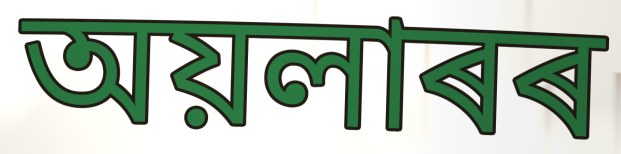
অয়লাৰৰ